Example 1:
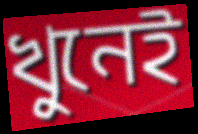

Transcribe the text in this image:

খুনেই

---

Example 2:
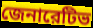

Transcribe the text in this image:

জেনারেটিভ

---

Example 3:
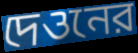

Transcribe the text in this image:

দেওনের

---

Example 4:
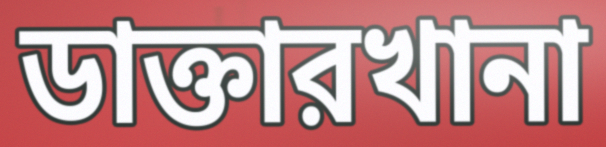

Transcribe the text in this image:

ডাক্তারখানা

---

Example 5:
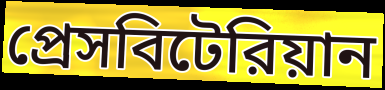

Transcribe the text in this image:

প্রেসবিটেরিয়ান